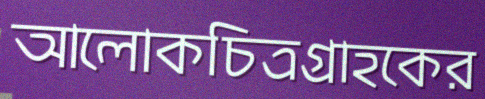
আলোকচিত্রগ্রাহকের